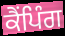
ਕੈਂਪਿੰਗ